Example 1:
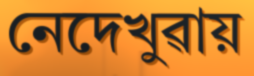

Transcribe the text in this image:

নেদেখুৱায়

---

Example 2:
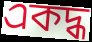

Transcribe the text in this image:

একদ্ধ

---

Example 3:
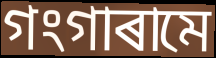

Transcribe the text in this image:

গংগাৰামে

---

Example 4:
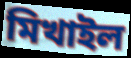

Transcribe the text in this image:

মিখাইল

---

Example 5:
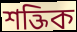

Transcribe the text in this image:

শক্তিক